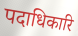
पदाधिकारि